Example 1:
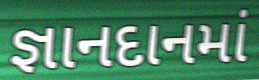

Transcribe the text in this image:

જ્ઞાનદાનમાં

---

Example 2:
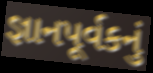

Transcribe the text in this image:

જ્ઞાનપૂર્વકનું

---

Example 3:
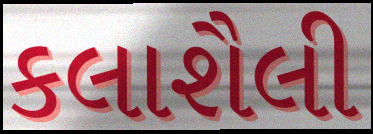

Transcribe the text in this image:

કલાશૈલી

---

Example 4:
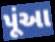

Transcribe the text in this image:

પૂંઆ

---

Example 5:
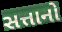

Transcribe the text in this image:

સત્તાનો